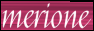
merione